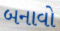
બનાવો